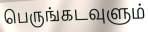
பெருங்கடவுளும்